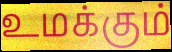
உமக்கும்